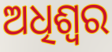
ଅଧିଶ୍ବର